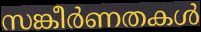
സങ്കീർണതകൾ